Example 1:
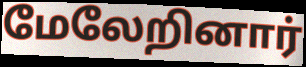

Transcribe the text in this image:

மேலேறினார்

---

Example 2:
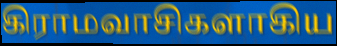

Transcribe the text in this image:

கிராமவாசிகளாகிய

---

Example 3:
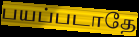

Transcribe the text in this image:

பயப்படாதே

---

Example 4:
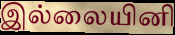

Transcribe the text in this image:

இல்லையினி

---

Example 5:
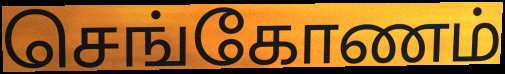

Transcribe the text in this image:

செங்கோணம்